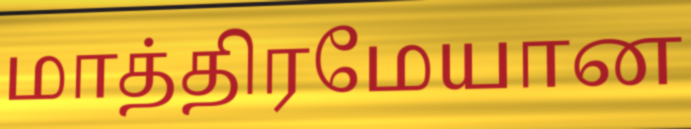
மாத்திரமேயான